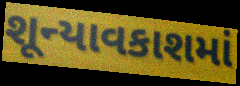
શૂન્યાવકાશમાં